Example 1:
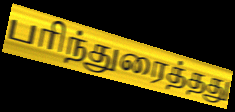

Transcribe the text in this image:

பரிந்துரைத்தது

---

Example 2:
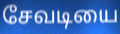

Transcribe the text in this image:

சேவடியை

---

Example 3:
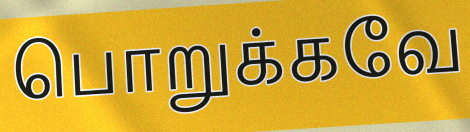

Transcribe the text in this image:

பொறுக்கவே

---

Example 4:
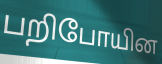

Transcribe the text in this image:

பறிபோயின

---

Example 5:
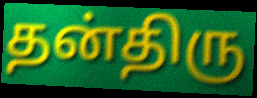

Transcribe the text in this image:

தன்திரு